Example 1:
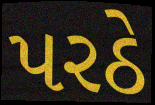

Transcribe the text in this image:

પરઠે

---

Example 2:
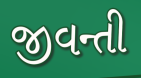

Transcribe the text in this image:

જીવન્તી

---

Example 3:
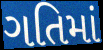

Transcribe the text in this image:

ગતિમાં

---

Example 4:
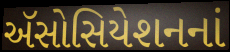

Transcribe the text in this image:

ઍસોસિયેશનનાં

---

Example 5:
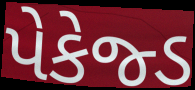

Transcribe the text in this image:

પેકેજ્ડ